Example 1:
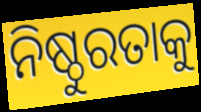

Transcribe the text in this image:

ନିଷ୍ଠୁରତାକୁ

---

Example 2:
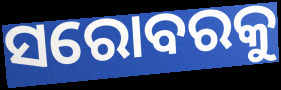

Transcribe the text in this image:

ସରୋବରକୁ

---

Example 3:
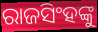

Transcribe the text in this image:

ରାଜସିଂହଙ୍କୁ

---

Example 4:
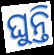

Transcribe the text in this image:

ଘୁନ୍ତି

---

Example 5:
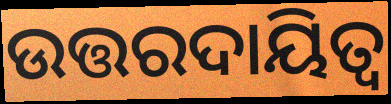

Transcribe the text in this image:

ଉତ୍ତରଦାୟିତ୍ଵ